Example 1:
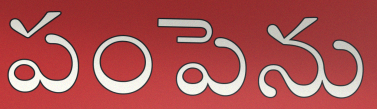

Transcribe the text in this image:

పంపెను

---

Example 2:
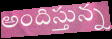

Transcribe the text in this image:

అందిస్తున్న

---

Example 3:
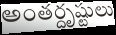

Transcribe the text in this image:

అంతర్దృష్టులు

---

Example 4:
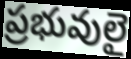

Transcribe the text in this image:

ప్రభువులై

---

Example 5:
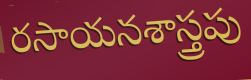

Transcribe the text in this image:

రసాయనశాస్త్రపు